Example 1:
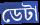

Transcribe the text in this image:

ডেটা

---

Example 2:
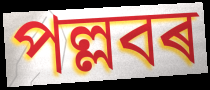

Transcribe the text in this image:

পল্লবৰ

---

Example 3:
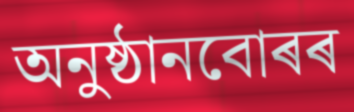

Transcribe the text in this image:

অনুষ্ঠানবোৰৰ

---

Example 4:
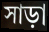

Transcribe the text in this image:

সাড়া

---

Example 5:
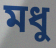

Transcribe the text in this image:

মধু